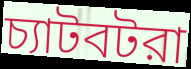
চ্যাটবটরা